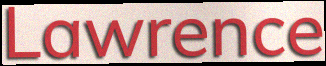
Lawrence